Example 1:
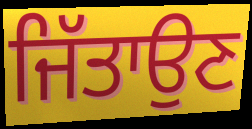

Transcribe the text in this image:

ਜਿੱਤਾਉਣ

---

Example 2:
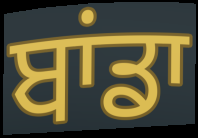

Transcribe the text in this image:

ਬਾਂਡਾ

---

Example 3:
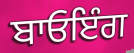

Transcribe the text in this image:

ਬਾਓਇੰਗ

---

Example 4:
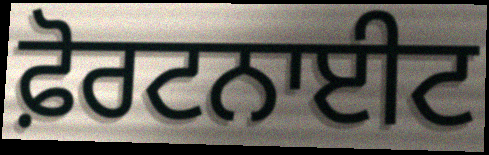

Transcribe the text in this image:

ਫ਼ੋਰਟਨਾਈਟ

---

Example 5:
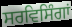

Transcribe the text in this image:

ਸਰਵਿਸਿੰਗਾਂ